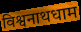
विश्वनाथधाम